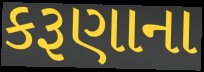
કરૂણાના